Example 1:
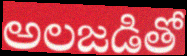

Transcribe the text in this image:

అలజడితో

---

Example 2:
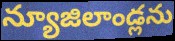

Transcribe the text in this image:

న్యూజిలాండ్లను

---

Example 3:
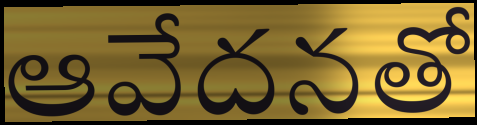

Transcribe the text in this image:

ఆవేదనతో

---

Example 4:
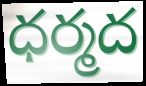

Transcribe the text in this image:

ధర్మద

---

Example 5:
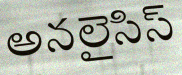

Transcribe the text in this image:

అనలైసిస్